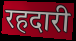
रहदारी